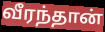
வீரந்தான்